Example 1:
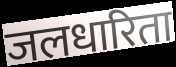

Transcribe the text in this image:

जलधारिता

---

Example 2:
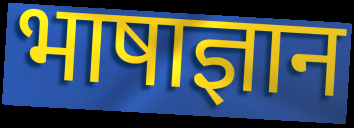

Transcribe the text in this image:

भाषाज्ञान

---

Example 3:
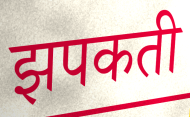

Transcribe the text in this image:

झपकती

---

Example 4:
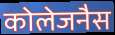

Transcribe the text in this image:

कोलेजनैस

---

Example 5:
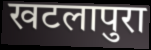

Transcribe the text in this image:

खटलापुरा